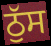
ਠੁੱਸ